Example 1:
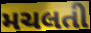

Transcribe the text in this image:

મચલતી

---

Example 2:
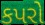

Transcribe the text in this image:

કપરો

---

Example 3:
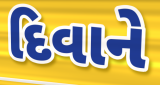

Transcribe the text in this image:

દિવાને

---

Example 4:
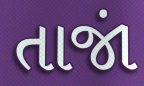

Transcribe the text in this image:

તાજાં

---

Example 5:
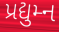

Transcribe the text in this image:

પ્રદ્યુમ્ન